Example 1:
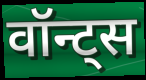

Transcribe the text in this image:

वॉन्ट्स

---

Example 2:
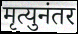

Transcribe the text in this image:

मृत्युनंतर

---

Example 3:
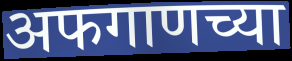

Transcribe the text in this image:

अफगाणच्या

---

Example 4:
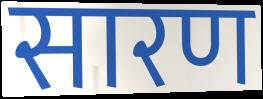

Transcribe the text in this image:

सारण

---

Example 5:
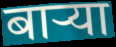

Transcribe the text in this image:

बाऱ्या